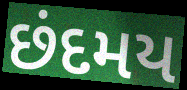
છંદમય